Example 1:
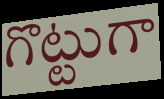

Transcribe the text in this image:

గొట్టుగా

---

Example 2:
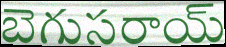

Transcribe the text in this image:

బెగుసరాయ్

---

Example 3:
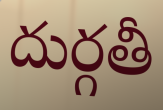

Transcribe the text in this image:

దుర్గతీ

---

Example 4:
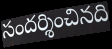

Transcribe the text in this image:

సందర్శించినది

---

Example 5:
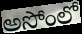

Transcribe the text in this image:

అసోంలో